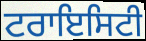
ਟਰਾਇਸਿਟੀ